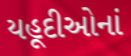
યહૂદીઓનાં